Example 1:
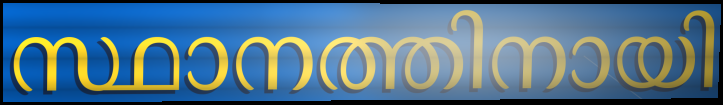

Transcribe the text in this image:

സ്ഥാനത്തിനായി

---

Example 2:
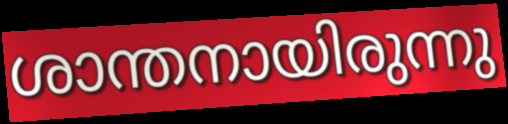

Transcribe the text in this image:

ശാന്തനായിരുന്നു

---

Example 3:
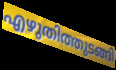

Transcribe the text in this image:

എഴുതിത്തുടങ്ങി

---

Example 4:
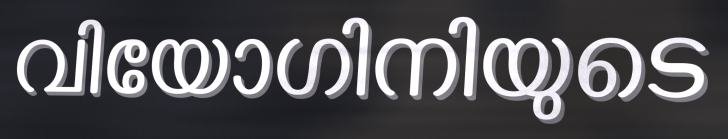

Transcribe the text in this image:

വിയോഗിനിയുടെ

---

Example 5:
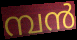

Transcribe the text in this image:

മ്പൻ